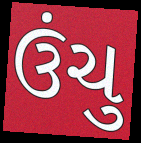
ઉંચુ